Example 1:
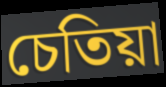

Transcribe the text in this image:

চেতিয়া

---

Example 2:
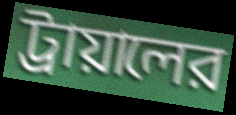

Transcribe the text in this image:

ট্রায়ালের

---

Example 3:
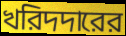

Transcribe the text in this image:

খরিদদারের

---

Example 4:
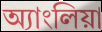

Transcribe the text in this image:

অ্যাংলিয়া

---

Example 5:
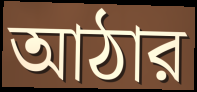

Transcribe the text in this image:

আঠার